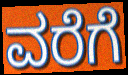
ವರೆಗೆ